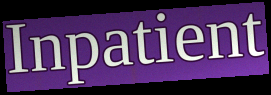
Inpatient